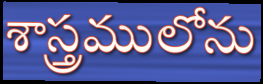
శాస్త్రములోను